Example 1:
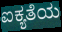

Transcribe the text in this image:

ಐಕ್ಯತೆಯ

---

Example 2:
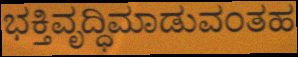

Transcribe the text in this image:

ಭಕ್ತಿವೃದ್ಧಿಮಾಡುವಂತಹ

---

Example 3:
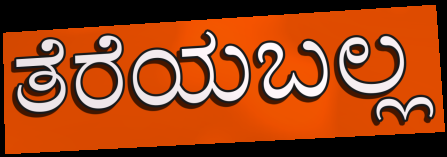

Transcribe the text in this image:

ತೆರೆಯಬಲ್ಲ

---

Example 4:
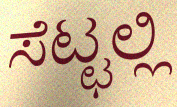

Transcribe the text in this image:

ಸೆಟ್ಟಲ್ಲಿ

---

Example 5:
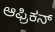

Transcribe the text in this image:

ಆಫ್ರಿಕನ್